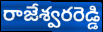
రాజేశ్వరరెడ్డి